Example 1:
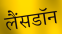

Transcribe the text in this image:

लैंसडॉन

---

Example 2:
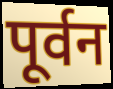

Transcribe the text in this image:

पूर्वन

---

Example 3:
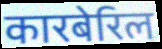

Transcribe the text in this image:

कारबेरिल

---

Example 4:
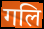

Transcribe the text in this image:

गलि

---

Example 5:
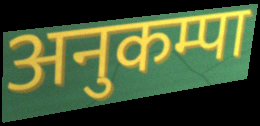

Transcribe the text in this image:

अनुकम्‍पा